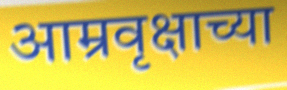
आम्रवृक्षाच्या